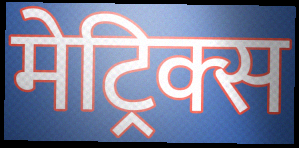
मेट्रिक्‍स